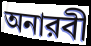
অনারবী